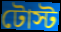
টোস্ট